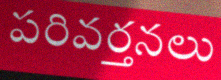
పరివర్తనలు